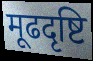
मूढदृष्टि